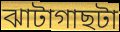
ঝাটাগাছটা